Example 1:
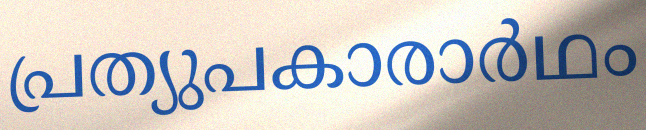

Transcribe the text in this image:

പ്രത്യുപകാരാർഥം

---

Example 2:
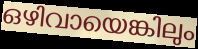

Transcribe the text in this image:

ഒഴിവായെങ്കിലും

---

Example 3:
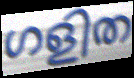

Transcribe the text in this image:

ഗളിത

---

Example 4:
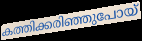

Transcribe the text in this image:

കത്തിക്കരിഞ്ഞുപോയ്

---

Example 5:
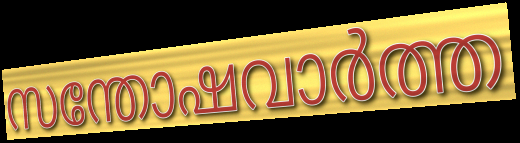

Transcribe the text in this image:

സന്തോഷവാർത്ത